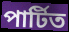
পাৰ্টিত